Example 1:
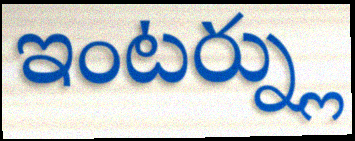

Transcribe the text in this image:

ఇంటర్న్లు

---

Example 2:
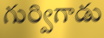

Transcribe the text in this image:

గుర్విగాడు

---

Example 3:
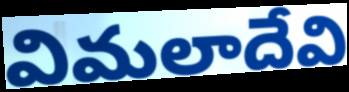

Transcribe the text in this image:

విమలాదేవి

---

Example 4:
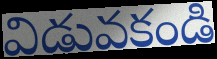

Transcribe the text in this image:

విడువకండి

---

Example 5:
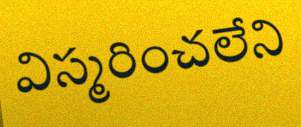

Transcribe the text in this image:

విస్మరించలేని